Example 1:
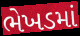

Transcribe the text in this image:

ભેખડમાં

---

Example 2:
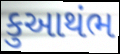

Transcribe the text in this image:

કુઆથંભ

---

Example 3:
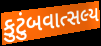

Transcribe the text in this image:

કુટુંબવાત્સલ્ય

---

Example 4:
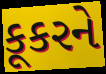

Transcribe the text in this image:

કૂકરને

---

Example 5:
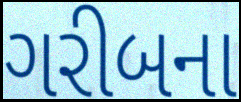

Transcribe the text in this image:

ગરીબના